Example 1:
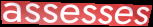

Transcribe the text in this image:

assesses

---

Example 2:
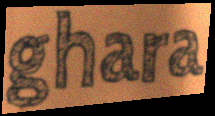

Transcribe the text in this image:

ghara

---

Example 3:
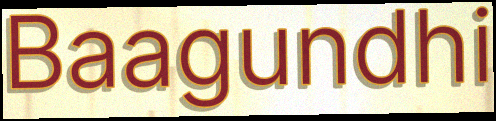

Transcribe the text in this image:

Baagundhi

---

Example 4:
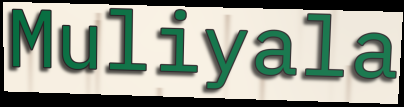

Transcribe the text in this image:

Muliyala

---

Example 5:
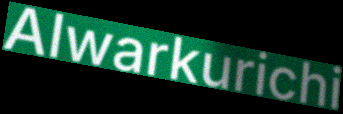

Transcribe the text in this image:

Alwarkurichi